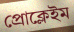
প্রোক্লেইম